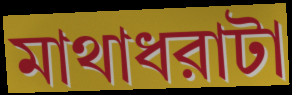
মাথাধরাটা